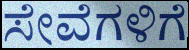
ಸೇವೆಗಳಿಗೆ